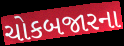
ચોકબજારના